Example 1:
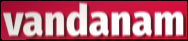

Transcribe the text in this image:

vandanam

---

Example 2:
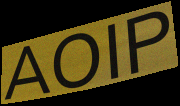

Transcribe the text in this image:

AOIP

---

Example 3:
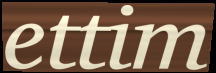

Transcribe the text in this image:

ettim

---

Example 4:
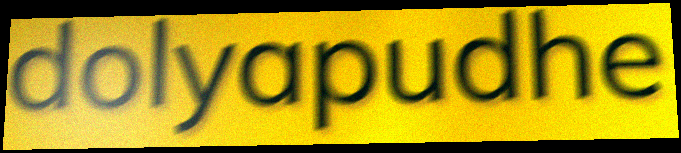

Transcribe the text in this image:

dolyapudhe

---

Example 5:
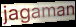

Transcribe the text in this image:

jagaman